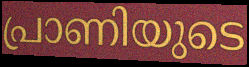
പ്രാണിയുടെ